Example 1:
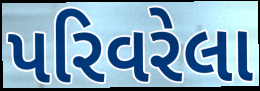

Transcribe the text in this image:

પરિવરેલા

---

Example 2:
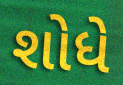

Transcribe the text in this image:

શોધે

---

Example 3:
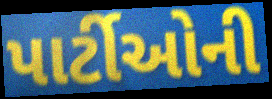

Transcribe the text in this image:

પાર્ટીઓની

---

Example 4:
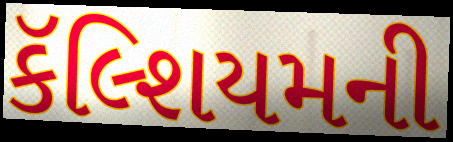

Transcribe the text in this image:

કૅલ્શિયમની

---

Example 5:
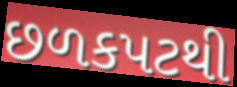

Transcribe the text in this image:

છળકપટથી